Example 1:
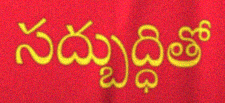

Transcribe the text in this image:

సద్బుద్ధితో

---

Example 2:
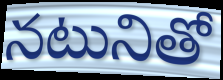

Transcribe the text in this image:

నటునితో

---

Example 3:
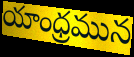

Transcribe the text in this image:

యాంధ్రమున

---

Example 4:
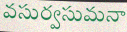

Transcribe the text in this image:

వసుర్వసుమనా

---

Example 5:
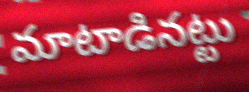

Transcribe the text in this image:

మాటాడినట్టు